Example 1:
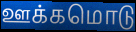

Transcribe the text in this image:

ஊக்கமொடு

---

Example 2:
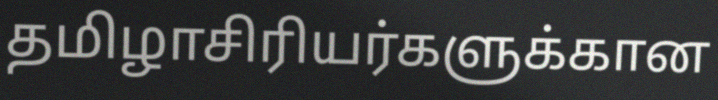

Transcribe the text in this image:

தமிழாசிரியர்களுக்கான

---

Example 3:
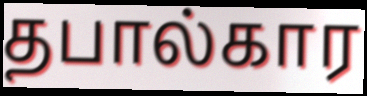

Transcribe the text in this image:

தபால்கார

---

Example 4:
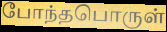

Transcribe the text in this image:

போந்தபொருள்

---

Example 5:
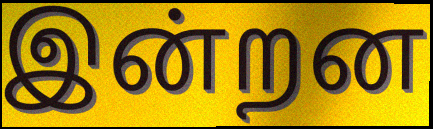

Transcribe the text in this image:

இன்றன